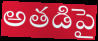
అతడిపై